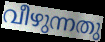
വീഴുന്നതു